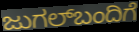
ಜುಗಲ್‌ಬಂದಿಗೆ